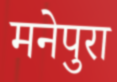
मनेपुरा